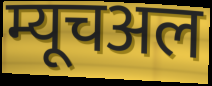
म्यूचअल